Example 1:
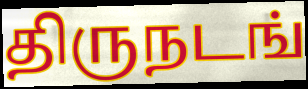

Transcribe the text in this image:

திருநடங்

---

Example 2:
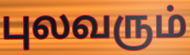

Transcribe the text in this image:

புலவரும்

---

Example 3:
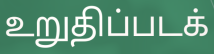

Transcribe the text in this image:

உறுதிப்படக்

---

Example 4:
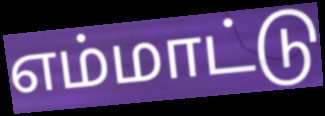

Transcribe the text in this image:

எம்மாட்டு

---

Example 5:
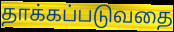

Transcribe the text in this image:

தாக்கப்படுவதை